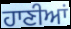
ਹਾਣੀਆਂ